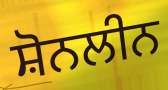
ਸ਼ੋਨਲੀਨ